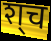
श्च